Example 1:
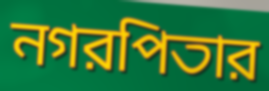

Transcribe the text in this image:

নগরপিতার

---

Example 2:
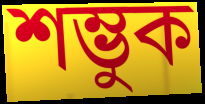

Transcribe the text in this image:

শম্ভুক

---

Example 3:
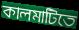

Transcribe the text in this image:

কালমাটিতে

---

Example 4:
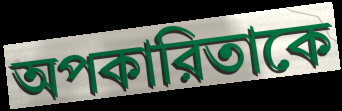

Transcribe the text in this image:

অপকারিতাকে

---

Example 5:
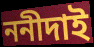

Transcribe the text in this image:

ননীদাই